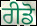
ਰੀਡੋ